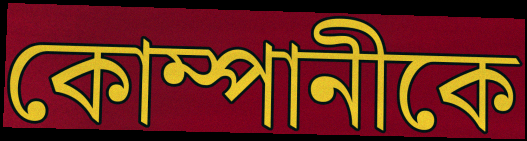
কোম্পানীকে